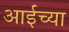
आईच्या